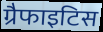
ग्रैफाइटिस